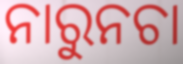
ନାରୁନଚା